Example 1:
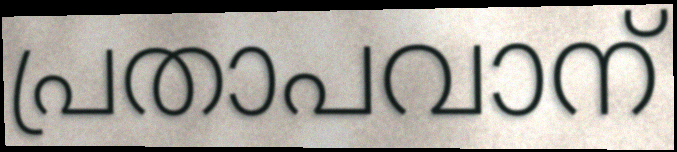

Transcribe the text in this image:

പ്രതാപവാന്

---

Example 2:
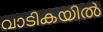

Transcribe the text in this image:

വാടികയിൽ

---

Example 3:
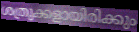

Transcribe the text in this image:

ശത്രുക്കളായിരിക്കും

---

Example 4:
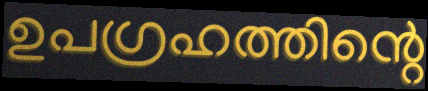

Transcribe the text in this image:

ഉപഗ്രഹത്തിന്റെ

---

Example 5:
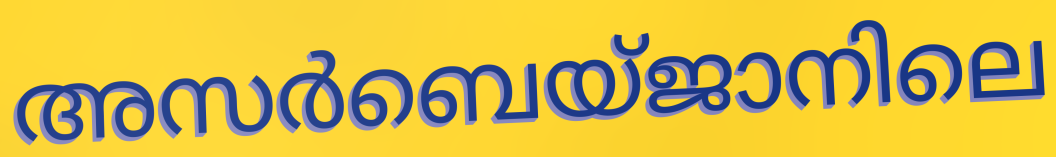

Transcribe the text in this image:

അസർബെയ്ജാനിലെ